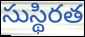
సుస్థిరత